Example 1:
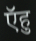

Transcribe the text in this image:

ऍहु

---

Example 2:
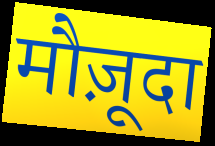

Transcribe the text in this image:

मौज़ूदा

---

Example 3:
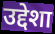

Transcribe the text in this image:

उद्देशा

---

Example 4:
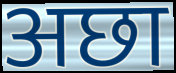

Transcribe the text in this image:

अछा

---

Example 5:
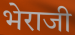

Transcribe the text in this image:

भेराजी